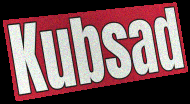
Kubsad